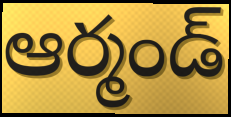
ఆర్మండ్